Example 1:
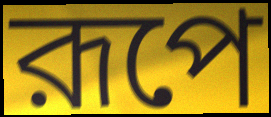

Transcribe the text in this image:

রূপে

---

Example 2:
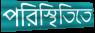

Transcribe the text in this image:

পরিস্থিতিতে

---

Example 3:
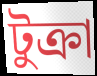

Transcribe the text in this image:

টুক্রা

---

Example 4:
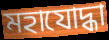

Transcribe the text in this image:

মহাযোদ্ধা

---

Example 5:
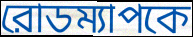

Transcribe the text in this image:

রোডম্যাপকে